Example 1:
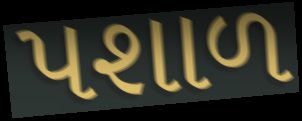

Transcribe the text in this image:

પશાળ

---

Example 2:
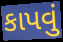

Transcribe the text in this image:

કાપવું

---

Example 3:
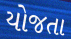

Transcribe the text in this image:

યોજતા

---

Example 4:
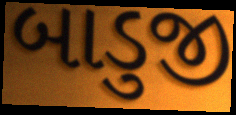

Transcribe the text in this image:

બાડુજી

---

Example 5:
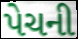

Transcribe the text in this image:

પેચની